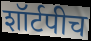
शॉर्टपीच